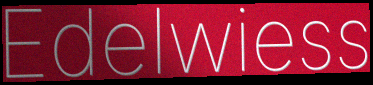
Edelwiess